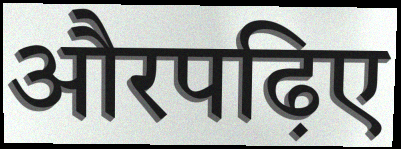
औरपढ़िए